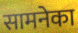
सामनेका